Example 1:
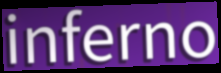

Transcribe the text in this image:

inferno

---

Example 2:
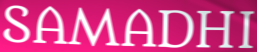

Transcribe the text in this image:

SAMADHI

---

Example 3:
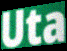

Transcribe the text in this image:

Uta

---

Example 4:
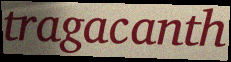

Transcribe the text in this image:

tragacanth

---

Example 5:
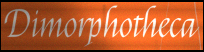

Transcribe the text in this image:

Dimorphotheca